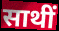
साथीं